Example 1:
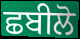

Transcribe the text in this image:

ਛਬੀਲੋ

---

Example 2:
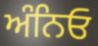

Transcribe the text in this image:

ਅੰਨਿਓ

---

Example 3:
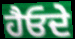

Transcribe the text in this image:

ਹੈਓਦੇ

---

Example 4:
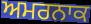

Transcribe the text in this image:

ਅਮਰਨਾਕ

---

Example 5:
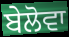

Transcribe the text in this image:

ਬੇਲੋਵਾ